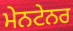
ਮੇਨਟੇਨਰ